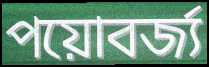
পয়োবর্জ্য